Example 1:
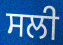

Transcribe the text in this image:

ਸਲੀ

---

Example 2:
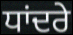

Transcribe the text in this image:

ਧਾਂਦਰੇ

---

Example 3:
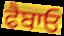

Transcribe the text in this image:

ਫੈਬਾਓ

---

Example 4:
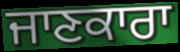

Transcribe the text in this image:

ਜਾਣਕਾਰਾ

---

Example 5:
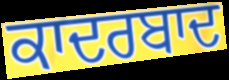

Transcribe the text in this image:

ਕਾਦਰਬਾਦ